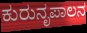
ಕುರುನೃಪಾಲನ